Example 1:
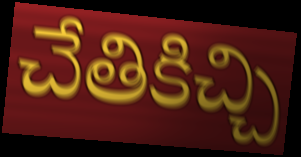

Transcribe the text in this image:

చేతికిచ్చి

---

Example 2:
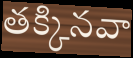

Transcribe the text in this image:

తక్కినవా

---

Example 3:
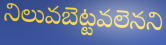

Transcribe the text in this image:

నిలువబెట్టవలెనని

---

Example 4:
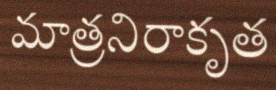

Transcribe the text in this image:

మాత్రనిరాకృత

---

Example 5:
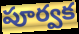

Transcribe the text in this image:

పూర్వక